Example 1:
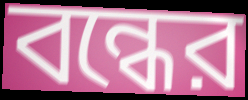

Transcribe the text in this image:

বন্ধের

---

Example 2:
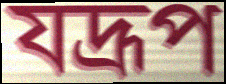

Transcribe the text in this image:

যদ্রূপ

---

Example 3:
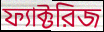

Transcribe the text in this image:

ফ্যাক্টরিজ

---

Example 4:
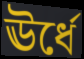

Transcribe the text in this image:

ঊর্ধে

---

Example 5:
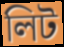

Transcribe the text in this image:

লিট